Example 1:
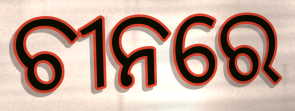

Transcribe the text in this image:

ଚୀନରେ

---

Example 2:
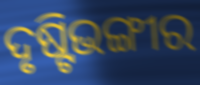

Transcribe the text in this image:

ଦୃଷ୍ଟିଭଙ୍ଗୀର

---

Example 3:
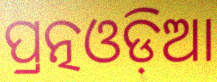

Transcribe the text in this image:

ପ୍ରତ୍ନଓଡ଼ିଆ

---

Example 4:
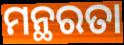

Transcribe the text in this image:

ମନ୍ଥରତା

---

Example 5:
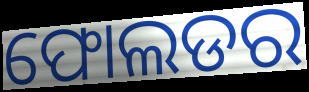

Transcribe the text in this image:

ଫୋଲଡର